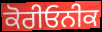
ਕੋਰੀਓਨੀਕ